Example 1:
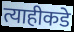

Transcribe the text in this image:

त्याहीकडे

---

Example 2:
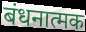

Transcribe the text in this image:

बंधनात्मक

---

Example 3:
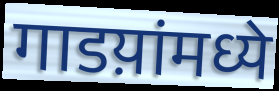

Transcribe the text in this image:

गाडय़ांमध्ये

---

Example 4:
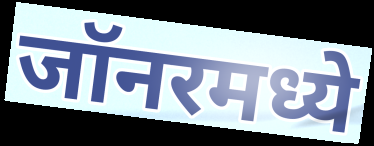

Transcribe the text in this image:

जॉनरमध्ये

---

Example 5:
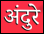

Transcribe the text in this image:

अंदुरे